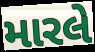
મારલે